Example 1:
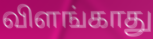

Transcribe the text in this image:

விளங்காது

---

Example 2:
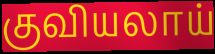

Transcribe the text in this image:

குவியலாய்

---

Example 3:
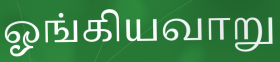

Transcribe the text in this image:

ஓங்கியவாறு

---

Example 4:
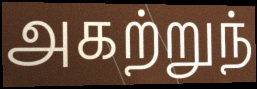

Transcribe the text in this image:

அகற்றுந்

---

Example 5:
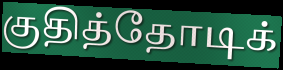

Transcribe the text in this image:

குதித்தோடிக்